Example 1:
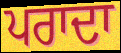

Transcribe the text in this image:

ਪਰਾਦਾ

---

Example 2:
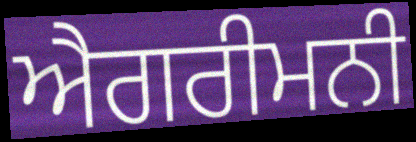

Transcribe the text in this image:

ਐਗਰੀਮਨੀ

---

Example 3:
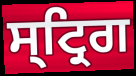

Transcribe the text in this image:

ਸ੍ਟ੍ਰਿਗ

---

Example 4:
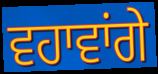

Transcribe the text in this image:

ਵਹਾਵਾਂਗੇ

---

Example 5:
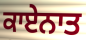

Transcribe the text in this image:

ਕਾਏਨਾਤ